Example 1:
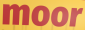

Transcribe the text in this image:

moor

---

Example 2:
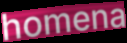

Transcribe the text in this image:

homena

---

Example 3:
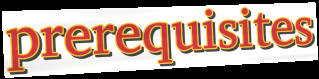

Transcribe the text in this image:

prerequisites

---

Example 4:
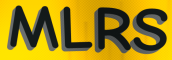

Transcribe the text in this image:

MLRS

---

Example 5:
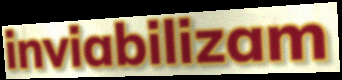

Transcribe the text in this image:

inviabilizam